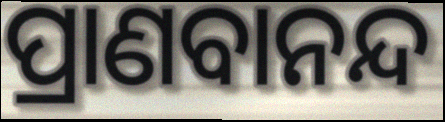
ପ୍ରାଣବାନନ୍ଦ